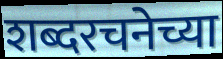
शब्दरचनेच्या